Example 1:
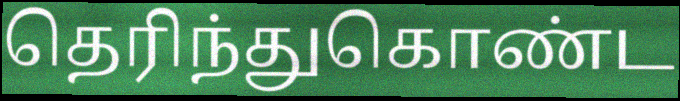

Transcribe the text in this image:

தெரிந்துகொண்ட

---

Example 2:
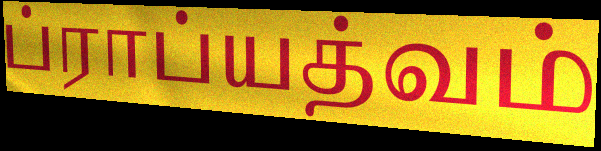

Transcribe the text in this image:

ப்ராப்யத்வம்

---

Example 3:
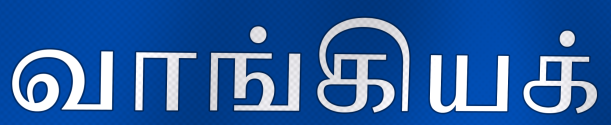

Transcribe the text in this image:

வாங்கியக்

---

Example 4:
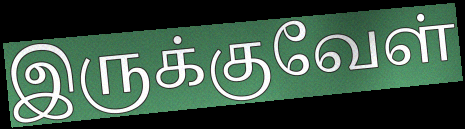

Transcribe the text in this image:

இருக்குவேள்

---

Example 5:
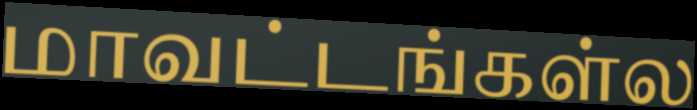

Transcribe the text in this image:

மாவட்டங்கள்ல